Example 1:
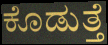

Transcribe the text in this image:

ಕೊಡುತ್ತೆ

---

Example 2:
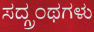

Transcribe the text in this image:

ಸದ್ಗ್ರಂಥಗಳು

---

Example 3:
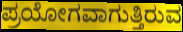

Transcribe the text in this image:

ಪ್ರಯೋಗವಾಗುತ್ತಿರುವ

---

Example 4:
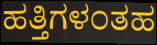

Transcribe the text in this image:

ಹತ್ತಿಗಳಂತಹ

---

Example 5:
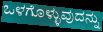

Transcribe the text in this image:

ಒಳಗೊಳ್ಳುವುದನ್ನು